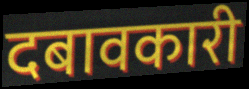
दबावकारी